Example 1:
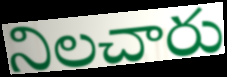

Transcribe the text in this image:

నిలచారు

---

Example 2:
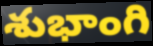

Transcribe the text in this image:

శుభాంగి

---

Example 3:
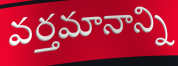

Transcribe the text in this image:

వర్తమానాన్ని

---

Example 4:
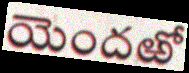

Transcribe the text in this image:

యెందఱో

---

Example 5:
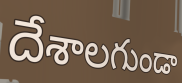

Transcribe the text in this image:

దేశాలగుండా